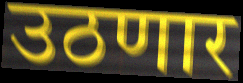
उठणार